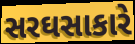
સરઘસાકારે